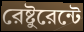
রেষ্টুরেন্টে